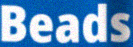
Beads